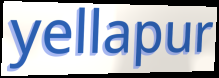
yellapur